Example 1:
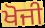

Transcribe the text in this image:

ਖੋਜੀ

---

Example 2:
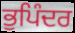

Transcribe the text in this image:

ਭੁਪਿੰਦਰ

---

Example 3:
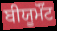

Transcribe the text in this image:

ਬੀਯੂਮੌਂਟ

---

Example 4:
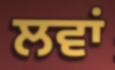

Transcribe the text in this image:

ਲਵਾਂ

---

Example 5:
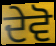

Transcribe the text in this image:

ਦੇਵੋ